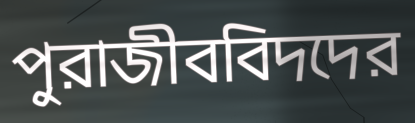
পুরাজীববিদদের